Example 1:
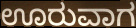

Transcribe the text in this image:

ಊರುವಾಗ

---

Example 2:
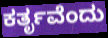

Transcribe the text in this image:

ಕರ್ತೃವೆಂದು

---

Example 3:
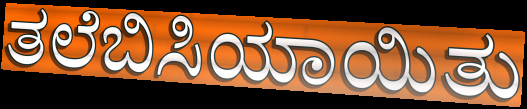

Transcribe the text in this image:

ತಲೆಬಿಸಿಯಾಯಿತು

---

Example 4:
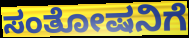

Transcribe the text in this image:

ಸಂತೋಷನಿಗೆ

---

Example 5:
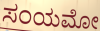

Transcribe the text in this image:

ಸಂಯಮೋ